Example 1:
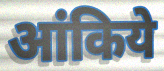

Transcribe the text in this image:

आंकिये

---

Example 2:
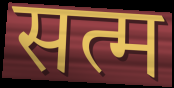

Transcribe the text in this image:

सत्म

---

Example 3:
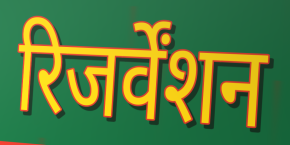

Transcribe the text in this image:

रिजर्वेंशन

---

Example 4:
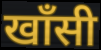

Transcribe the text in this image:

खाँसी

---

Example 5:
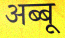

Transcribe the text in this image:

अब्बू